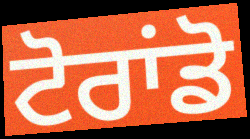
ਟੋਰਾਂਡੋ